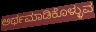
ಅರ್ಥಮಾಡಿಕೊಳ್ಳುವ